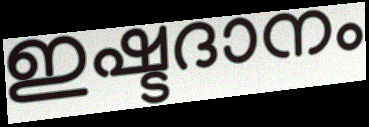
ഇഷ്ടദാനം